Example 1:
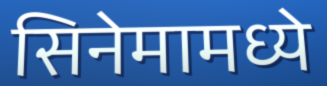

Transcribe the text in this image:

सिनेमामध्ये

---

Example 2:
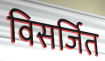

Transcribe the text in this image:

विसर्जित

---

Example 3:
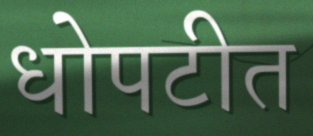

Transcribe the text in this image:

धोपटीत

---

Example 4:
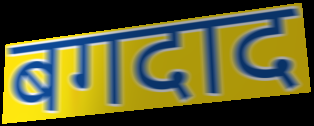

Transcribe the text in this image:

बगदाद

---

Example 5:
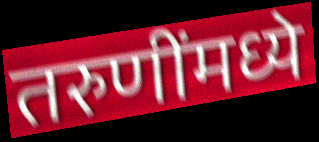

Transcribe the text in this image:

तरुणींमध्ये